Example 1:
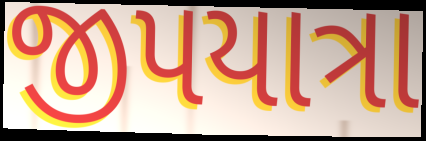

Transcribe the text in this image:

જીપયાત્રા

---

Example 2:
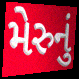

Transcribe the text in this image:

મેરુનું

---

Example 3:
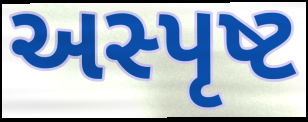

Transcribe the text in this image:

અસ્પૃષ્ટ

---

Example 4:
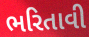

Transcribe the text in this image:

ભરિતાવી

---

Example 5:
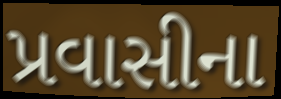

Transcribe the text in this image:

પ્રવાસીના